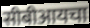
सीबीआयचा